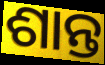
ଶାନ୍ତ